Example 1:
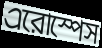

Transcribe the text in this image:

এরোস্পেস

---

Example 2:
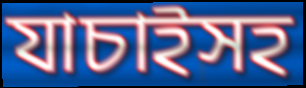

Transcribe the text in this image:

যাচাইসহ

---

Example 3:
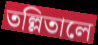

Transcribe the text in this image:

তল্লিতালে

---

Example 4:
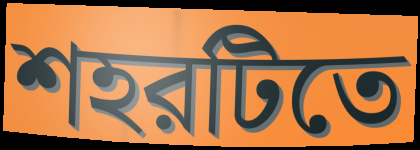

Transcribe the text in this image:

শহরটিতে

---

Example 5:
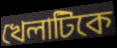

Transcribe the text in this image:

খেলাটিকে